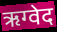
ॠग्वेद